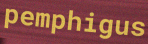
pemphigus